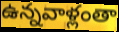
ఉన్నవాళ్లంతా